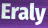
Eraly